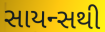
સાયન્સથી